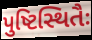
પુષ્ટિસ્થિતૈઃ